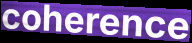
coherence